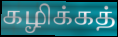
கழிக்கத்